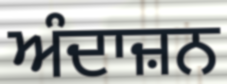
ਅੰਦਾਜ਼ਨ